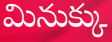
మినుక్కు